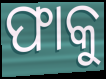
ଫାକୁ